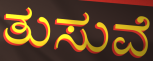
ತುಸುವೆ